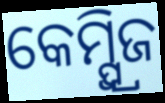
କେମ୍ପ୍ୱ୍ରିଜ